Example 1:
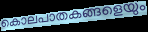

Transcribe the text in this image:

കൊലപാതകങ്ങളെയും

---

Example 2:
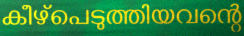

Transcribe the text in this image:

കീഴ്പെടുത്തിയവന്റെ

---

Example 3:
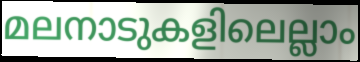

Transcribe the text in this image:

മലനാടുകളിലെല്ലാം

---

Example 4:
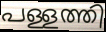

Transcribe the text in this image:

പള്ളത്തി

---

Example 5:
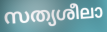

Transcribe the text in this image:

സത്യശീലാ